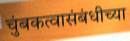
चुंबकत्वासंबंधीच्या